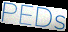
PEDs